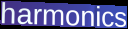
harmonics